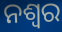
ନଶ୍ଵର